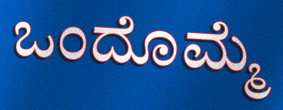
ಒಂದೊಮ್ಮೆ